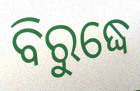
ବିରୁଦ୍ଧେ